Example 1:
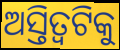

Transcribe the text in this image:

ଅସ୍ତିତ୍ୱଟିକୁ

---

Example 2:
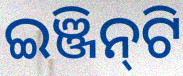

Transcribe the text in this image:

ଇଞ୍ଜିନ୍‌ଟି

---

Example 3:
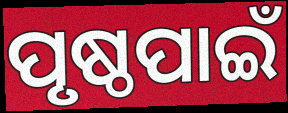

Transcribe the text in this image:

ପୃଷ୍ଠପାଇଁ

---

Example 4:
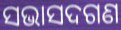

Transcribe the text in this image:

ସଭାସଦଗଣ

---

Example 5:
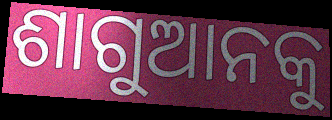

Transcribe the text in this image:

ଶାଗୁଆନକୁ